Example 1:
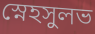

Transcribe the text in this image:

স্নেহসুলভ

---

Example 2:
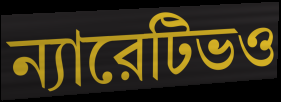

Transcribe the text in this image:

ন্যারেটিভও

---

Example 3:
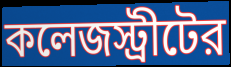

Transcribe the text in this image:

কলেজস্ট্রীটের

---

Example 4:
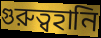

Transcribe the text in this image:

গুরুত্বহানি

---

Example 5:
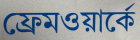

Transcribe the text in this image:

ফ্রেমওয়ার্কে